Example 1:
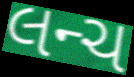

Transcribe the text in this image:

લન્ચ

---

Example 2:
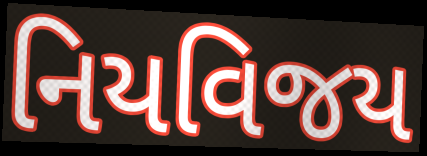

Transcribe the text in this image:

નિયવિજય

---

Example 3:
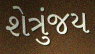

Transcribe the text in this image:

શેત્રુંજય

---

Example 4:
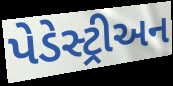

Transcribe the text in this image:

પેડેસ્ટ્રીઅન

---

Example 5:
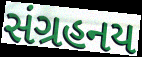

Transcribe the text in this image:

સંગ્રહનય